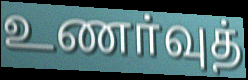
உணர்வுத்